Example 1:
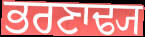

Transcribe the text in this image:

ਭਰਣਾਢ੍ਯ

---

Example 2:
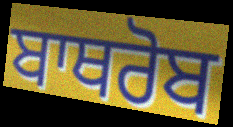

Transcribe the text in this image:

ਬਾਥਰੋਬ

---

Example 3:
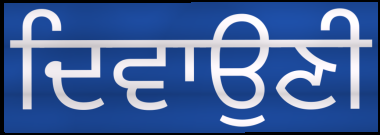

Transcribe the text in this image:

ਦਿਵਾਉਣੀ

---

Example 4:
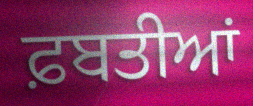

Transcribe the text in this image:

ਫ਼ਬਤੀਆਂ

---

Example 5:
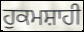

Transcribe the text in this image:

ਹੁਕਮਸ਼ਾਹੀ